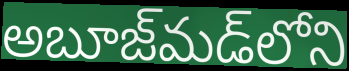
అబూజ్‌మడ్‌లోని